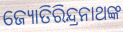
ଜ୍ୟୋତିରିନ୍ଦ୍ରନାଥଙ୍କ